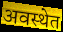
अवस्थेत